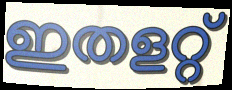
ഇതളറ്റ്